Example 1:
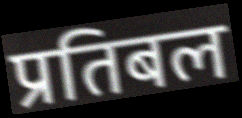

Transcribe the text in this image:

प्रतिबल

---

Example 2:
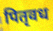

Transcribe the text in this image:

पितृवध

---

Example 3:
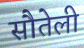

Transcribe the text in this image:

सौतेली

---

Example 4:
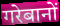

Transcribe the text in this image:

गरेबानों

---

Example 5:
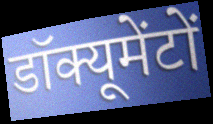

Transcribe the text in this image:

डॉक्यूमेंटों